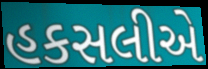
હકસલીએ